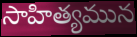
సాహిత్యమున